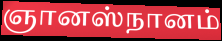
ஞானஸ்நானம்